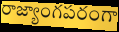
రాజ్యాంగపరంగా